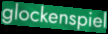
glockenspiel